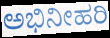
ಅಭಿನೀಹರಿ